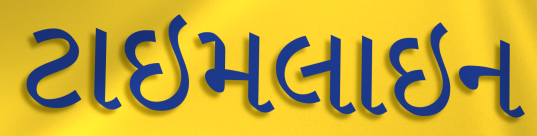
ટાઇમલાઇન